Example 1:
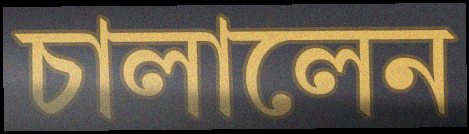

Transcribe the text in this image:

চালালেন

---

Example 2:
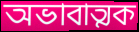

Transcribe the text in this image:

অভাবাত্মক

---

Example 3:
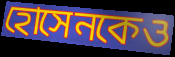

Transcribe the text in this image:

হোসেনকেও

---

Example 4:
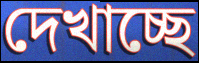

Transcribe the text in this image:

দেখাচ্ছে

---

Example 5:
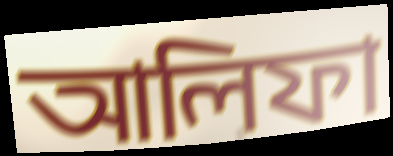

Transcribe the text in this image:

আলিফা